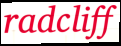
radcliff